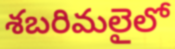
శబరిమలైలో